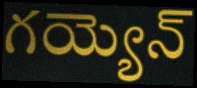
గయ్యెన్